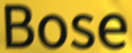
Bose